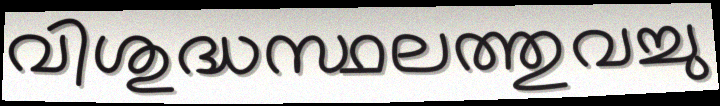
വിശുദ്ധസ്ഥലത്തുവച്ചു